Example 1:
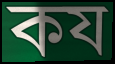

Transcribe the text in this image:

কয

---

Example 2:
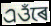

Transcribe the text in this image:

এওঁৰে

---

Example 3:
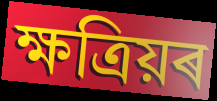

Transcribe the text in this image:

ক্ষত্ৰিয়ৰ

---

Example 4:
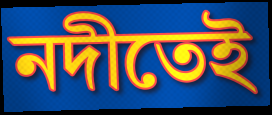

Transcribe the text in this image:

নদীতেই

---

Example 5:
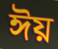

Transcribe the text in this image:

ঈয়